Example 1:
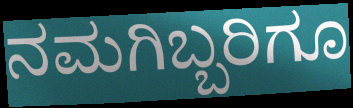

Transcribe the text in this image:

ನಮಗಿಬ್ಬರಿಗೂ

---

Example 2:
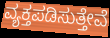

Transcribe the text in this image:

ವ್ಯಕ್ತಪಡಿಸುತ್ತೇವೆ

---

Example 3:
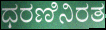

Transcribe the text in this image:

ಧರಣಿನಿರತ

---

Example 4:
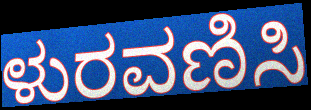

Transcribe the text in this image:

ಳುರವಣಿಸಿ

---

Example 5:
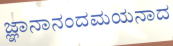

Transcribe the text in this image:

ಜ್ಞಾನಾನಂದಮಯನಾದ